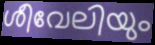
ശീവേലിയും